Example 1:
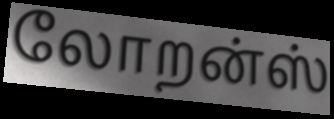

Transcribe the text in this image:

லோறன்ஸ்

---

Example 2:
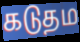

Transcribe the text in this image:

கடுதம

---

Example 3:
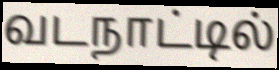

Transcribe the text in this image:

வடநாட்டில்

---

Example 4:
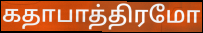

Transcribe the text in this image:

கதாபாத்திரமோ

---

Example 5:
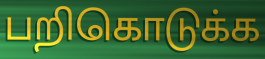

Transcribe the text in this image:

பறிகொடுக்க